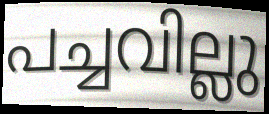
പച്ചവില്ലു